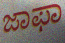
ಜಾಫಾ